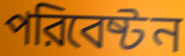
পরিবেষ্টন